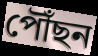
পৌঁছন